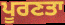
ਪੂਰਣਤਾ